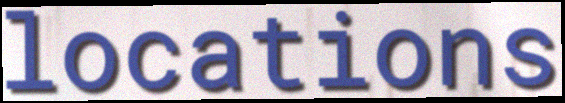
locations